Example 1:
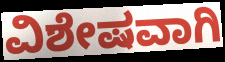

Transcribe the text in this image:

ವಿಶೇಷವಾಗಿ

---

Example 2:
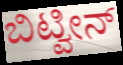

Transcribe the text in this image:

ಬಿಟ್ವೀನ್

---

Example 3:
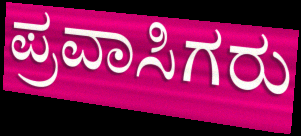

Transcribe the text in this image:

ಪ್ರವಾಸಿಗರು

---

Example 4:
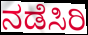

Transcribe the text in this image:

ನಡೆಸಿರಿ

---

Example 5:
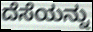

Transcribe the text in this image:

ದೆಸೆಯನ್ನು